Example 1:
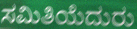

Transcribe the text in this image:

ಸಮಿತಿಯೆದುರು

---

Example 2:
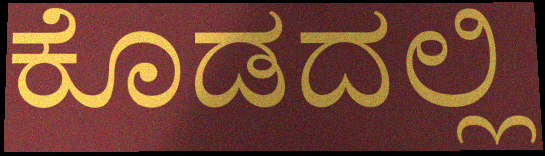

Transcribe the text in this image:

ಕೊಡದಲ್ಲಿ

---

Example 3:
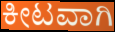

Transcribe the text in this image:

ಕೀಟವಾಗಿ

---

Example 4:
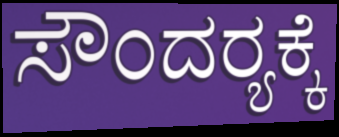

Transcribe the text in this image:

ಸೌಂದರ‍್ಯಕ್ಕೆ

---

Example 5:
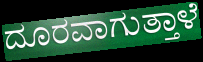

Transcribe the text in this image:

ದೂರವಾಗುತ್ತಾಳೆ